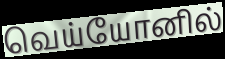
வெய்யோனில்